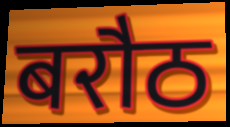
बरौठ